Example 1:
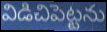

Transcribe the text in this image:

విడిచిపెట్టను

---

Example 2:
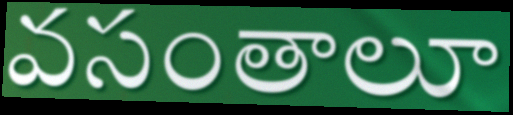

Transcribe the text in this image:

వసంతాలూ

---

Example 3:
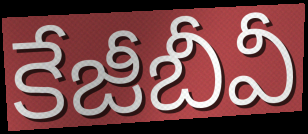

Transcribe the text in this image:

కేజీబీవీ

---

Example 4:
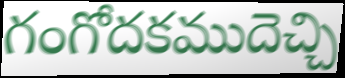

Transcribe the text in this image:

గంగోదకముదెచ్చి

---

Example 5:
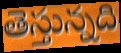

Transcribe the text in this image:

తెస్తున్నది